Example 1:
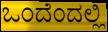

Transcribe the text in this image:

ಒಂದೆಂದಲ್ಲಿ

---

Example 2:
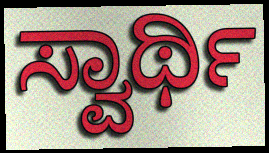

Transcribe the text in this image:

ಸ್ವಾರ್ಥಿ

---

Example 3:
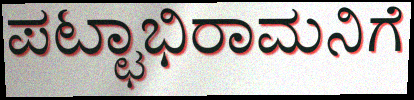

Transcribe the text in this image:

ಪಟ್ಟಾಭಿರಾಮನಿಗೆ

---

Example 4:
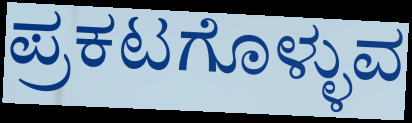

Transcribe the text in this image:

ಪ್ರಕಟಗೊಳ್ಳುವ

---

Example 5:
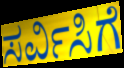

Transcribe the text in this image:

ಸರ್ವಿಸಿಗೆ